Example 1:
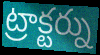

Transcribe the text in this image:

ట్రాక్టర్ను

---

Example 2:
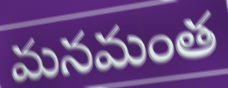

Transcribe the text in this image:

మనమంత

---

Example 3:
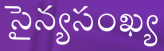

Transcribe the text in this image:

సైన్యసంఖ్య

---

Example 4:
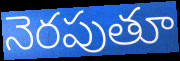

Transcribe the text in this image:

నెరపుతూ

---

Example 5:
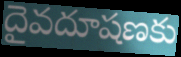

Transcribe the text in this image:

దైవదూషణకు